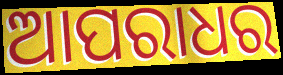
ଆପରାଧର